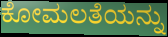
ಕೋಮಲತೆಯನ್ನು